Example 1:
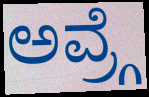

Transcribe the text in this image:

ಅವ್ರ್ಗೆ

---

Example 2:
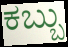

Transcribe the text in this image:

ಕಬ್ಬು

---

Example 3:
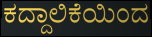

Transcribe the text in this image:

ಕದ್ದಾಲಿಕೆಯಿಂದ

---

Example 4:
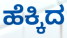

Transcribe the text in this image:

ಹೆಕ್ಕಿದ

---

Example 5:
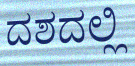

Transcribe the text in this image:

ದಶದಲ್ಲಿ